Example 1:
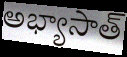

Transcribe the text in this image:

అభ్యాసాత్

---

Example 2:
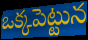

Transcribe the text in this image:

ఒక్కపెట్టున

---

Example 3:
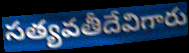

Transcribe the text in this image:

సత్యవతీదేవిగారు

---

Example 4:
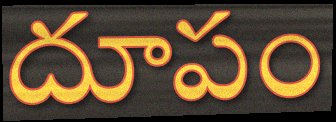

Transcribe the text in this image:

దూపం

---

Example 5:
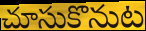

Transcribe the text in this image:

చూసుకొనుట